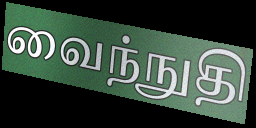
வைந்நுதி